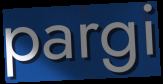
pargi